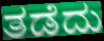
ತಡೆದು